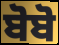
ਬੋਬੋ